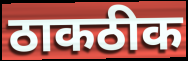
ठाकठीक